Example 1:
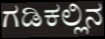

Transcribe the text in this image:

ಗಡಿಕಲ್ಲಿನ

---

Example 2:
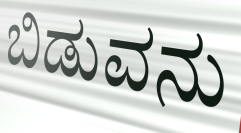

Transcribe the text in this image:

ಬಿಡುವನು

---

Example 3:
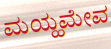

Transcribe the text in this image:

ಮಯ್ಹಮೇವ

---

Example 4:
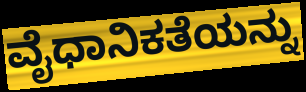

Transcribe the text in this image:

ವೈಧಾನಿಕತೆಯನ್ನು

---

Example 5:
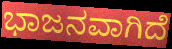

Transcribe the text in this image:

ಭಾಜನವಾಗಿದೆ